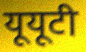
यूयूटी